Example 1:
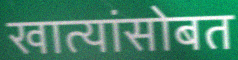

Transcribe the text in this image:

खात्यांसोबत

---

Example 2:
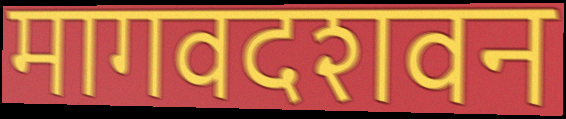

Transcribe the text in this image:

मागवदशवन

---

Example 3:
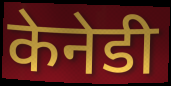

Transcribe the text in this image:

केनेडी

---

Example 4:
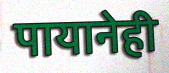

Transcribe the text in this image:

पायानेही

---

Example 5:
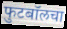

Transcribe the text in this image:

फुटबॉलचा